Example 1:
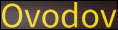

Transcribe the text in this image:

Ovodov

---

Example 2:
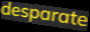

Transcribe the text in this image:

desparate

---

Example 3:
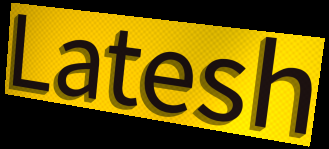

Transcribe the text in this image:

Latesh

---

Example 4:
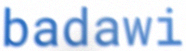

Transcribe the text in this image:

badawi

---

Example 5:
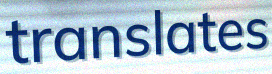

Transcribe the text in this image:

translates